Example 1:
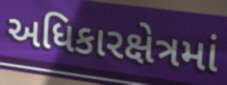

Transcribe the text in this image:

અધિકારક્ષેત્રમાં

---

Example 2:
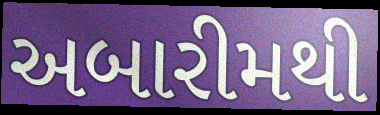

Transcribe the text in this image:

અબારીમથી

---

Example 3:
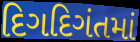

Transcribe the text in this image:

દિગદિગંતમાં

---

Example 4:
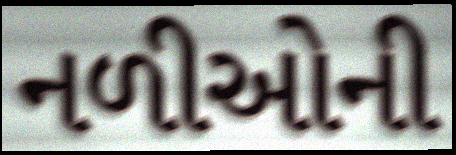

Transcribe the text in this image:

નળીઓની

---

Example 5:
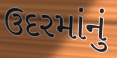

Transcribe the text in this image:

ઉદરમાંનું